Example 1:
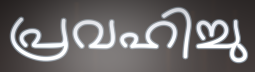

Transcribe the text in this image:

പ്രവഹിച്ചു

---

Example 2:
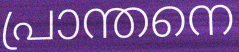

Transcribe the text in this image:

പ്രാന്തനെ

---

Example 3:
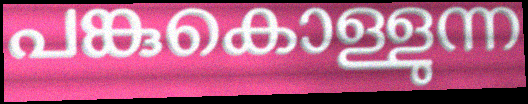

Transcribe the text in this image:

പങ്കുകൊള്ളുന്ന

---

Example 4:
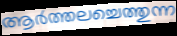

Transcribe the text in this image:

ആർത്തലച്ചെത്തുന്ന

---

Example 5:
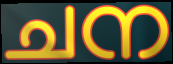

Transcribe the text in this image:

ചന